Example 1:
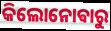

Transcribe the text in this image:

କିଲୋନୋଵାରୁ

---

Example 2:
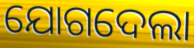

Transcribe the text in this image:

ଯୋଗଦେଲା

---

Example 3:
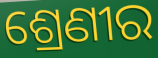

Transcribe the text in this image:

ଶ୍ରେଣୀର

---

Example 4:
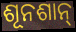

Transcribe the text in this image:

ଶୂନଶାନ୍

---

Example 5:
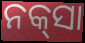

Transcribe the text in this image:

ନକ୍‍ସା